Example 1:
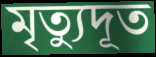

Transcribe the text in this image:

মৃত্যুদূত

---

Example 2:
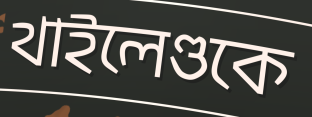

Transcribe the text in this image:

থাইলেণ্ডকে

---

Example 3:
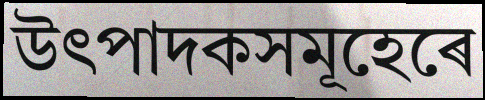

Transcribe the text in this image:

উৎপাদকসমূহেৰে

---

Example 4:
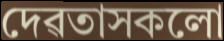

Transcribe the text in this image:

দেৱতাসকলো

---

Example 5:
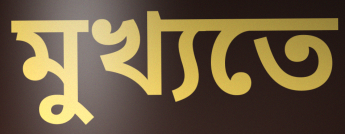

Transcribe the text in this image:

মুখ্যতে